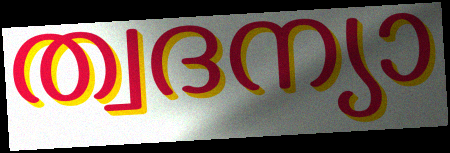
ത്വദന്യാ